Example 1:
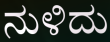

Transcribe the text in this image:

ನುಳಿದು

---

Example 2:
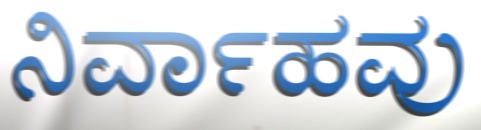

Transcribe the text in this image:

ನಿರ್ವಾಹವು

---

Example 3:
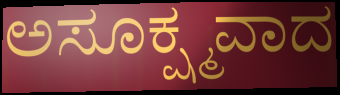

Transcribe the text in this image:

ಅಸೂಕ್ಷ್ಮವಾದ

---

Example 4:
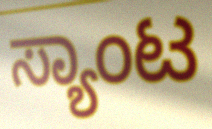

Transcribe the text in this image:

ಸ್ಯಾಂಟ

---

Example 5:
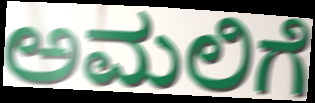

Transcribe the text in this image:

ಅಮಲಿಗೆ